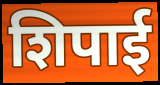
शिपाई